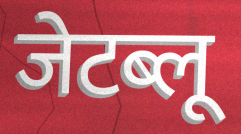
जेटब्लू